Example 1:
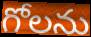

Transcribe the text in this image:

గోలను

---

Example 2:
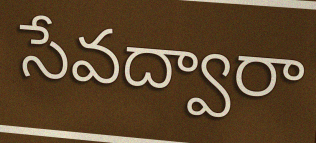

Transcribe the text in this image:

సేవద్వారా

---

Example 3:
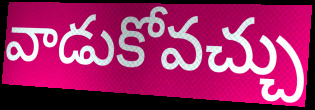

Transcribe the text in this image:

వాడుకోవచ్చు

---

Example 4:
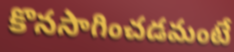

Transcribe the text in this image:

కొనసాగించడమంటే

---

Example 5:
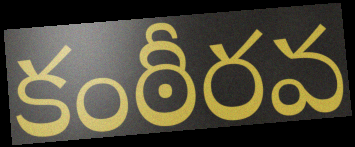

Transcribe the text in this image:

కంఠీరవ